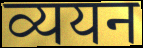
व्ययन